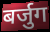
बर्जुग